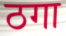
ठगा